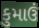
કુમાઉં